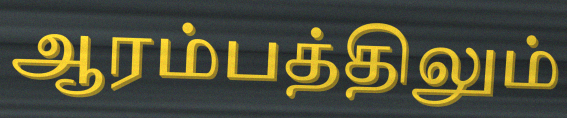
ஆரம்பத்திலும்